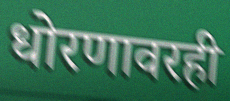
धोरणावरही